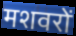
मशवरों